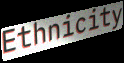
Ethnicity